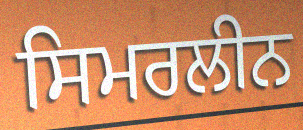
ਸਿਮਰਲੀਨ